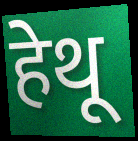
हेथू